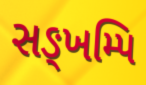
સઙ્ખમ્પિ